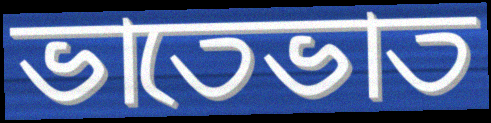
ভাতেভাত